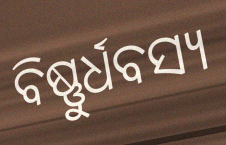
ବିଷ୍ଣୁର୍ଧବସ୍ୟ